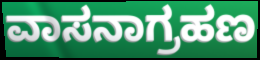
ವಾಸನಾಗ್ರಹಣ